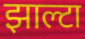
झाल्टा